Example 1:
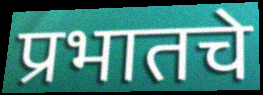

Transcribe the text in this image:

प्रभातचे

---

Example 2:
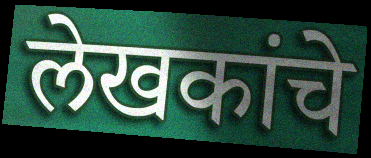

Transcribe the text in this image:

लेखकांचे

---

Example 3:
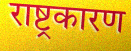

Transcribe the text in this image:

राष्ट्रकारण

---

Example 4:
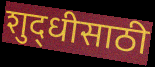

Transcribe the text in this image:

शुद्धीसाठी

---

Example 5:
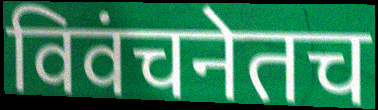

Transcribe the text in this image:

विवंचनेतच